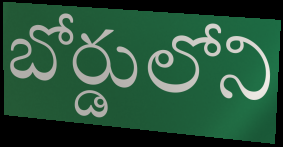
బోర్డులోని